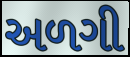
અળગી